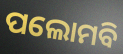
ପଲୋମବି